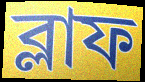
ব্লাফ